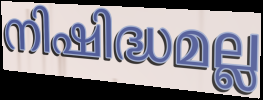
നിഷിദ്ധമല്ല